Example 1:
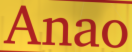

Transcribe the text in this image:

Anao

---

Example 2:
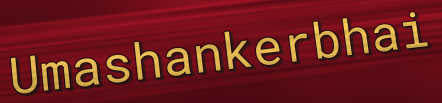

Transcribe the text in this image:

Umashankerbhai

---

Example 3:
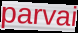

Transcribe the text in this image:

parvai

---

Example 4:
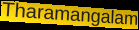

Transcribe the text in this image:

Tharamangalam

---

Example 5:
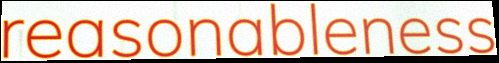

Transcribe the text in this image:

reasonableness